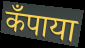
कँपाया